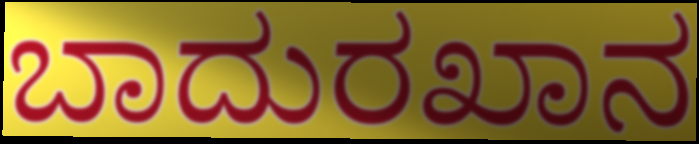
ಬಾದುರಖಾನ